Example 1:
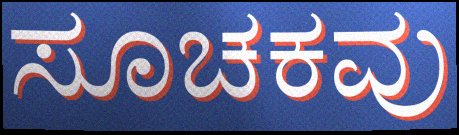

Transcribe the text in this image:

ಸೂಚಕವು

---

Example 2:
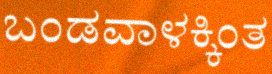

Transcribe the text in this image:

ಬಂಡವಾಳಕ್ಕಿಂತ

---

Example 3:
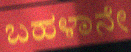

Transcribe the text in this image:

ಬಹಳಾನೇ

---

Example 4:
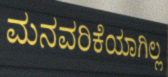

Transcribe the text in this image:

ಮನವರಿಕೆಯಾಗಿಲ್ಲ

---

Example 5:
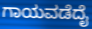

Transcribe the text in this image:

ಗಾಯವಡೆದೈ